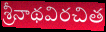
శ్రీనాథవిరచిత